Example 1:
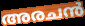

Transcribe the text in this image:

അരചൻ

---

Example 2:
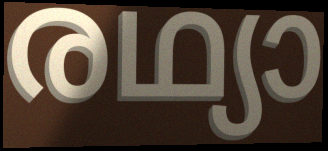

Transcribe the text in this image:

രഥ്യാ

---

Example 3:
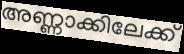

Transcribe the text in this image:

അണ്ണാക്കിലേക്ക്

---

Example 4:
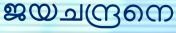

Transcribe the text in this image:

ജയചന്ദ്രനെ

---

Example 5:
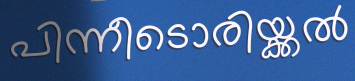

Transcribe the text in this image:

പിന്നീടൊരിയ്ക്കൽ